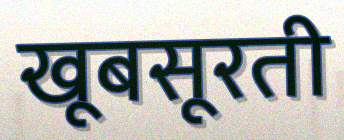
खूबसूरती